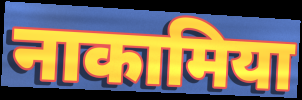
नाकामिया